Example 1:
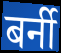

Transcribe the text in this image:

बर्नी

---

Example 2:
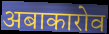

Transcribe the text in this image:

अबाकारोव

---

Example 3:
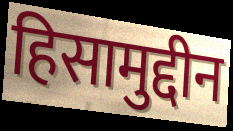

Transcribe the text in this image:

हिसामुद्दीन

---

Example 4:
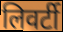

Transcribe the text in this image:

लिवर्टी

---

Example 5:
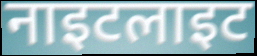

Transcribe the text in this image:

नाइटलाइट